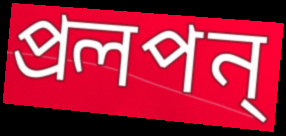
প্রলপন্